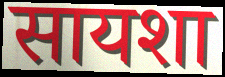
सायशा